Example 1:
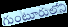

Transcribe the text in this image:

గుంటూరులోని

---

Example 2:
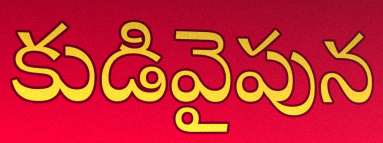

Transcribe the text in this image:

కుడివైపున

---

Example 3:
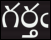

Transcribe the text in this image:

గర్తఁ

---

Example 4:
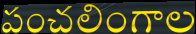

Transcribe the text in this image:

పంచలింగాల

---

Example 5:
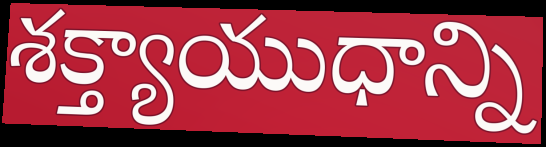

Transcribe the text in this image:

శక్త్యాయుధాన్ని